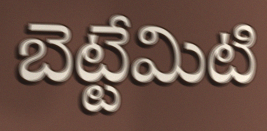
బెట్టేమిటి